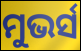
ମୁଭର୍ସ